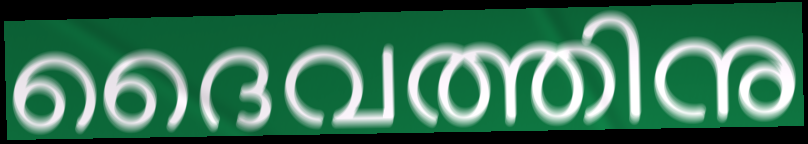
ദൈവത്തിനു